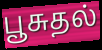
பூசுதல்